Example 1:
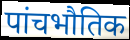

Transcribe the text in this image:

पांचभौतिक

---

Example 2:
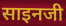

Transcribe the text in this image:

साइनजी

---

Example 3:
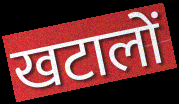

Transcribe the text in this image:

खटालों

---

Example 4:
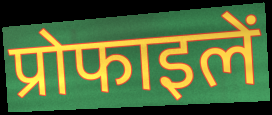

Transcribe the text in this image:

प्रोफाइलें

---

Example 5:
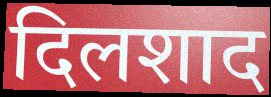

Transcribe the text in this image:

दिलशाद